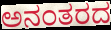
ಅನಂತರದ